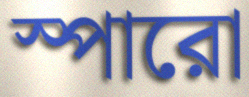
স্পারো